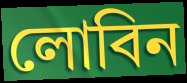
লোবিন